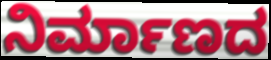
ನಿರ್ಮಾಣದ